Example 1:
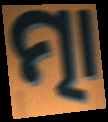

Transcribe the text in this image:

ତ୍ମା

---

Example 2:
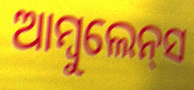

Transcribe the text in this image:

ଆମ୍ବୁଲେନ୍‌ସ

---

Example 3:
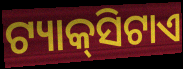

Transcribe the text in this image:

ଟ୍ୟାକ୍‌ସିଟାଏ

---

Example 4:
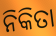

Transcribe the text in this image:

ନିକିତା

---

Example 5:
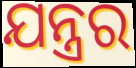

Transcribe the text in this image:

ଯନ୍ତ୍ରର